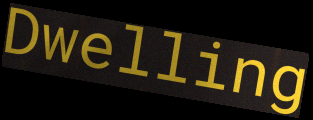
Dwelling